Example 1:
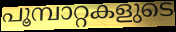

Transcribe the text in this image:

പൂമ്പാറ്റകളുടെ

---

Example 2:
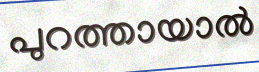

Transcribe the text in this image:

പുറത്തായാൽ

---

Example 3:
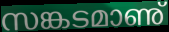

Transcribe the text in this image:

സങ്കടമാണു്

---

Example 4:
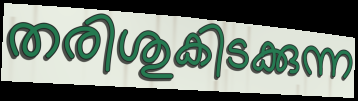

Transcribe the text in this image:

തരിശുകിടക്കുന്ന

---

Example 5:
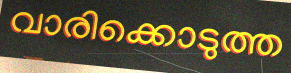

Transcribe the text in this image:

വാരിക്കൊടുത്ത